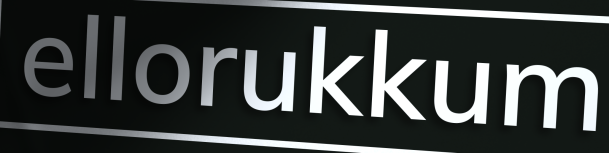
ellorukkum